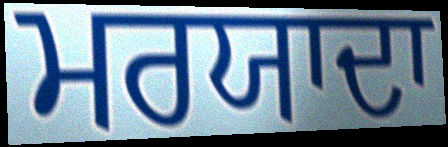
ਮਰਯਾਦਾ